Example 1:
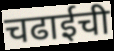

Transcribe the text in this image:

चढाईची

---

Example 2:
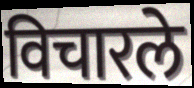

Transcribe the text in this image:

विचारले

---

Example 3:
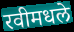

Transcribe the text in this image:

रवीमधले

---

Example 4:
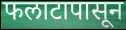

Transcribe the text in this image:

फलाटापासून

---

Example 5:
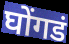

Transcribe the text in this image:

घोंगडं